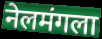
नेलमंगला